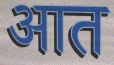
आत